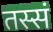
तस्सं